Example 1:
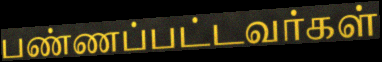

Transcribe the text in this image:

பண்ணப்பட்டவர்கள்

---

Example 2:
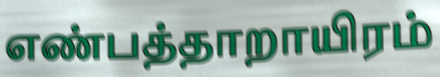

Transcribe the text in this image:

எண்பத்தாறாயிரம்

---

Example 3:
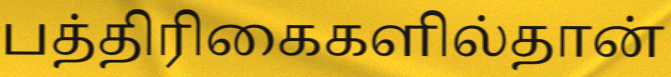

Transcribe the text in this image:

பத்திரிகைகளில்தான்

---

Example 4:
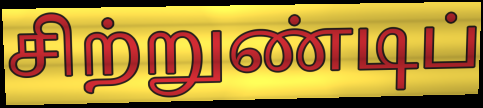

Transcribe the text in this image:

சிற்றுண்டிப்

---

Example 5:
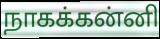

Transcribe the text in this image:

நாகக்கன்னி